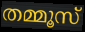
തമ്മൂസ്